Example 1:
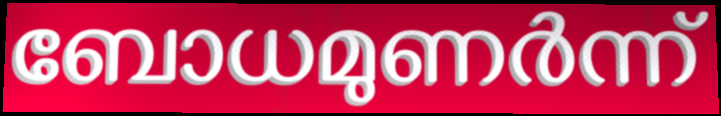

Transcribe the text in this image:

ബോധമുണർന്ന്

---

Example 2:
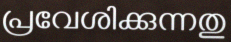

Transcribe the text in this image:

പ്രവേശിക്കുന്നതു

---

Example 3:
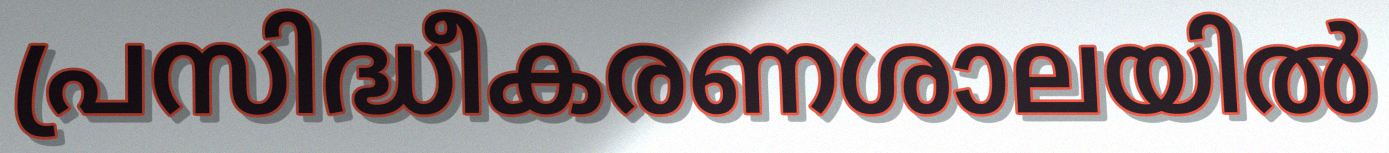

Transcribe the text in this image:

പ്രസിദ്ധീകരണശാലയിൽ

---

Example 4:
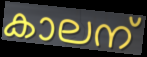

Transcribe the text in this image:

കാലന്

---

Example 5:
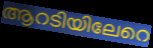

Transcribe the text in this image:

ആറടിയിലേറെ